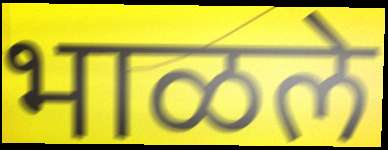
भाळले